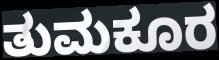
ತುಮಕೂರ